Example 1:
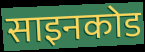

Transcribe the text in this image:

साइनकोड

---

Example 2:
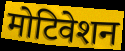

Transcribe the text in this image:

मोटिवेशन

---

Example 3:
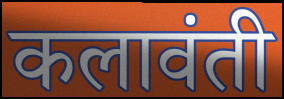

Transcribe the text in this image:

कलावंती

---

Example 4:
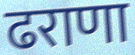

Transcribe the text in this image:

ढराणा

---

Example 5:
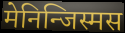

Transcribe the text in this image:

मेनिन्जिस्मस